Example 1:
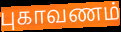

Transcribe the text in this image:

புகாவணம்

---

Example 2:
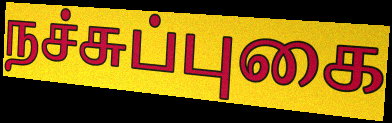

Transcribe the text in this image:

நச்சுப்புகை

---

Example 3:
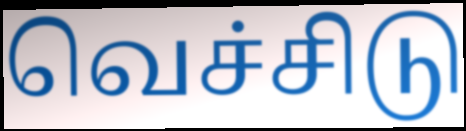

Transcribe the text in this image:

வெச்சிடு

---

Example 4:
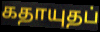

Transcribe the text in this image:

கதாயுதப்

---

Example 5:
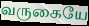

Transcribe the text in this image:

வருகையே